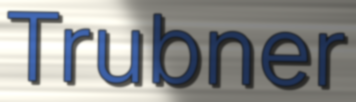
Trubner